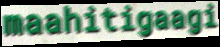
maahitigaagi